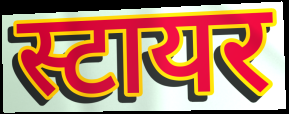
स्टायर